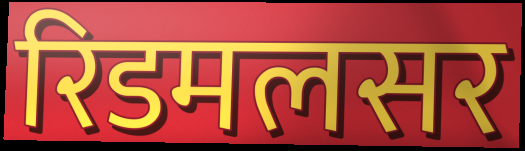
रिडमलसर